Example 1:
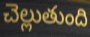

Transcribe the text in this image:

చెల్లుతుంది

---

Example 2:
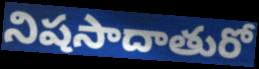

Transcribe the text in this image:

నిషసాదాతురో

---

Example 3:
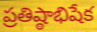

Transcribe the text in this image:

ప్రతిష్ఠాభిషేక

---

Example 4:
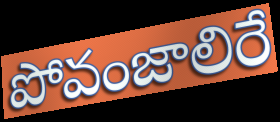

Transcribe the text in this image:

పోవంజాలిరే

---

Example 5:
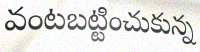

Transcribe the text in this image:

వంటబట్టించుకున్న